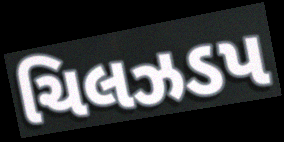
ચિલઝડપ